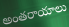
అంతరాయాలు